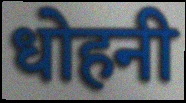
धोहनी